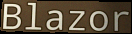
Blazor